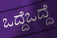
ಒದ್ದೆಒದ್ದೆ